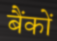
बैंकों